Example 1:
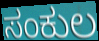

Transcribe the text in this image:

ಸಂಕುಲ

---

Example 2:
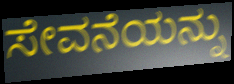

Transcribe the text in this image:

ಸೇವನೆಯನ್ನು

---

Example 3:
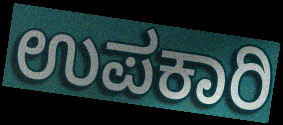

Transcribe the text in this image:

ಉಪಕಾರಿ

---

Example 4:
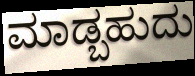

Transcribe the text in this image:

ಮಾಡ್ಬಹುದು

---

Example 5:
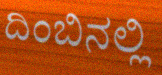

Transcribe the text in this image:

ದಿಂಬಿನಲ್ಲಿ